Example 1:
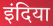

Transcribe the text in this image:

इंदिया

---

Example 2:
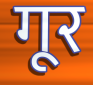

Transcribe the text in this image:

गूर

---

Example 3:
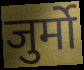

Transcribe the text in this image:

जुर्मो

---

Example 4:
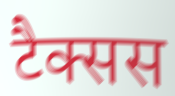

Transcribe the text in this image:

टैक्सस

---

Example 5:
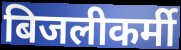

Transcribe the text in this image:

बिजलीकर्मी